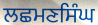
ਲਛਮਣਸਿੰਘ